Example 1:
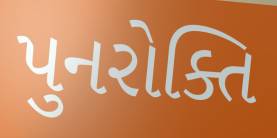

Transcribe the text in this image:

પુનરોક્તિ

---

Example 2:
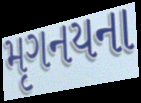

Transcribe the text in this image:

મૃગનયના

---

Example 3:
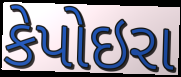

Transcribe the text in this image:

કેપોઇરા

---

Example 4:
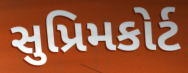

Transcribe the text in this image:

સુપ્રિમકોર્ટ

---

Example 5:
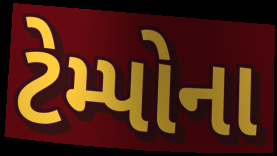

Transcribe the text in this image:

ટેમ્પોના